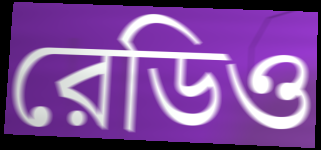
রেডিও